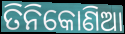
ତିନିକୋଣିଆ